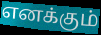
எனக்கும்